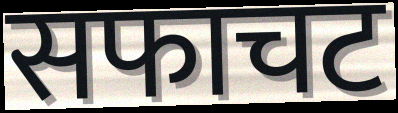
सफाचट